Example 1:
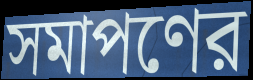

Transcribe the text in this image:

সমাপণের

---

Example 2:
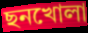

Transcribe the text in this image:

ছনখোলা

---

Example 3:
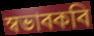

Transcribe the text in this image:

স্বভাবকবি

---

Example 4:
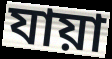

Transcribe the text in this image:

যায়া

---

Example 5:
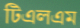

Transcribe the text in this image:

টিএলএম